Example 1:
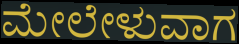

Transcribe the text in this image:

ಮೇಲೇಳುವಾಗ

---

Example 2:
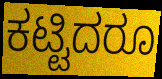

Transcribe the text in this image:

ಕಟ್ಟಿದರೂ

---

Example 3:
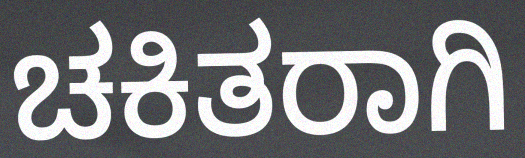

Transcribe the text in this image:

ಚಕಿತರಾಗಿ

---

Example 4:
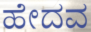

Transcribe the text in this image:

ಹೇದವ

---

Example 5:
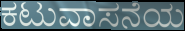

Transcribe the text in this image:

ಕಟುವಾಸನೆಯ